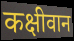
कक्षीवान